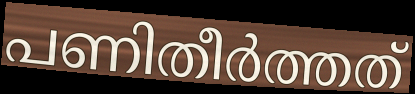
പണിതീർത്തത്